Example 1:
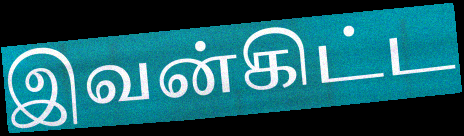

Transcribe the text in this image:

இவன்கிட்ட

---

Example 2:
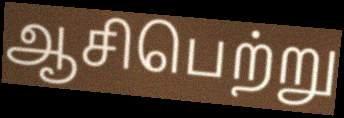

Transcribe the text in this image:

ஆசிபெற்று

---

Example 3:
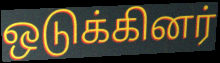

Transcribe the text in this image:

ஒடுக்கினர்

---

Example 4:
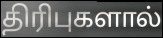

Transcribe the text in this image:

திரிபுகளால்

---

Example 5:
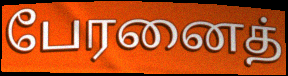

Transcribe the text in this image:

பேரனைத்